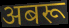
अबरू